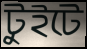
টুইটে